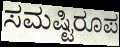
ಸಮಷ್ಟಿರೂಪ